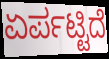
ಏರ್ಪಟ್ಟಿದೆ